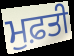
ਮੁਫ਼ਤੀ